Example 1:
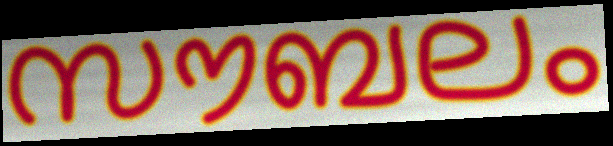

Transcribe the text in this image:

സൗബലം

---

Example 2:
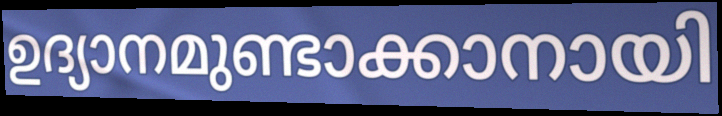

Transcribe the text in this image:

ഉദ്യാനമുണ്ടാക്കാനായി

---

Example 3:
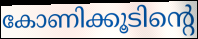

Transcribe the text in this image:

കോണിക്കൂടിന്റെ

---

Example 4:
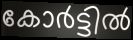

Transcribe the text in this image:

കോർട്ടിൽ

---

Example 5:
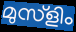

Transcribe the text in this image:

മുസ്ളിം